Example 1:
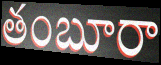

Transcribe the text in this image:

తంబూరా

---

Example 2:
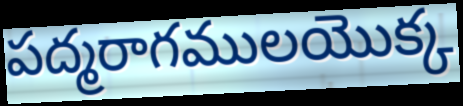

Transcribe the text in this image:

పద్మరాగములయొక్క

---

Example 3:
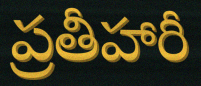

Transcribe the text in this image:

ప్రతీహారీ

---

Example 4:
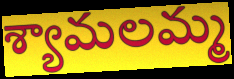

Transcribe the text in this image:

శ్యామలమ్మ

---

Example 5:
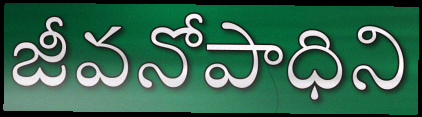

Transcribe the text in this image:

జీవనోపాధిని